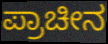
ಪ್ರಾಚೀನ